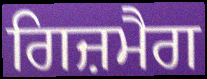
ਗਿਜ਼ਮੈਗ